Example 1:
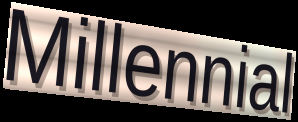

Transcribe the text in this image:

Millennial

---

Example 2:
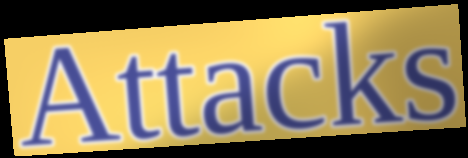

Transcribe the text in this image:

Attacks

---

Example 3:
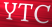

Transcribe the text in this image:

YTC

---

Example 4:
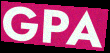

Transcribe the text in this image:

GPA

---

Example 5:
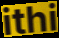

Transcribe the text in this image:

ithi